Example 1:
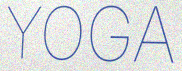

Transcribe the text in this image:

YOGA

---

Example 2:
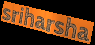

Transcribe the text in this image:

sriharsha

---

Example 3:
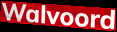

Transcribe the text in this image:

Walvoord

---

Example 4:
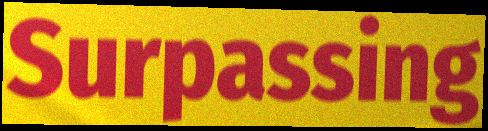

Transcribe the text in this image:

Surpassing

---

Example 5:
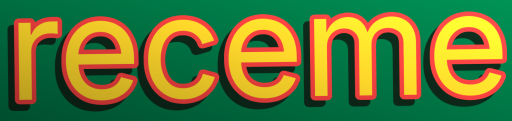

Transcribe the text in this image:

receme